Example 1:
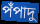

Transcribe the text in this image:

পঁপাদু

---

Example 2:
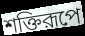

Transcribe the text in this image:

শক্তিরূপে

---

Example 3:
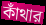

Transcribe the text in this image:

কাঁথার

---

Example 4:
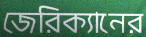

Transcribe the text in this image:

জেরিক্যানের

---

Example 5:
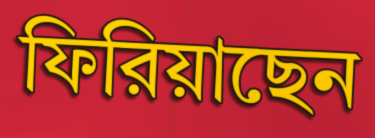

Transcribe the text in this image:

ফিরিয়াছেন